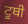
ਟੂਥੀ